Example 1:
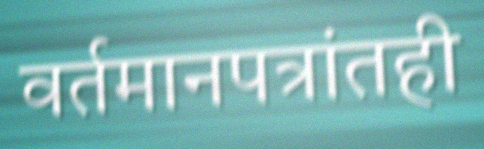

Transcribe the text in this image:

वर्तमानपत्रांतही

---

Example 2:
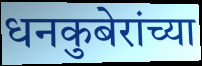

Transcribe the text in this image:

धनकुबेरांच्या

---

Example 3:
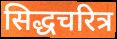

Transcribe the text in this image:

सिद्धचरित्र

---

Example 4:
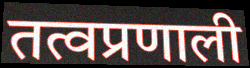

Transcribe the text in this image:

तत्वप्रणाली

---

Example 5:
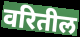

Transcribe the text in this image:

वरितील